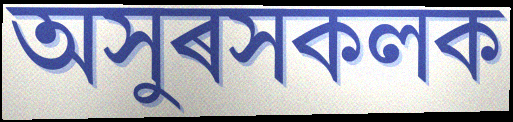
অসুৰসকলক